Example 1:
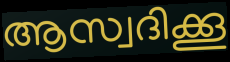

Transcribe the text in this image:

ആസ്വദിക്കൂ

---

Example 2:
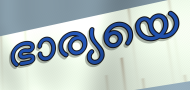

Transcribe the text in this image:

ഭാര്യയെ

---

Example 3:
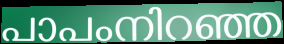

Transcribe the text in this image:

പാപംനിറഞ്ഞ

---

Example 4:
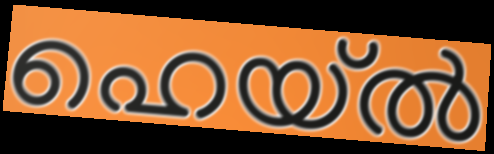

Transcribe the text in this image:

ഹെയ്ൽ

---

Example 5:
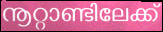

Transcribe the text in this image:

നൂറ്റാണ്ടിലേക്ക്